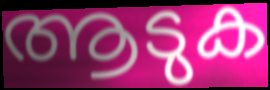
ആടുക